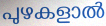
പുഴകളാൽ